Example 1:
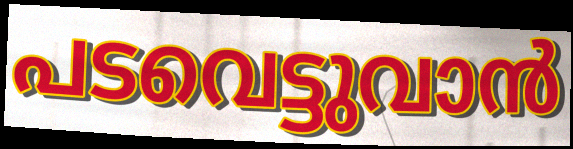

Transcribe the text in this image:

പടവെട്ടുവാൻ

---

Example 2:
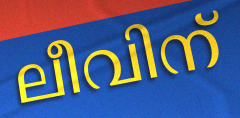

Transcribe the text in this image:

ലീവിന്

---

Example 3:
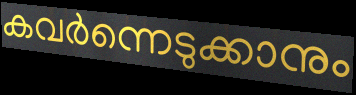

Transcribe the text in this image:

കവർന്നെടുക്കാനും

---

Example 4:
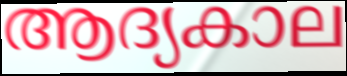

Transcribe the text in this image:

ആദ്യകാല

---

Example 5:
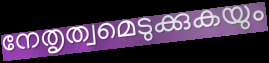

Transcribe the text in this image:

നേതൃത്വമെടുക്കുകയും